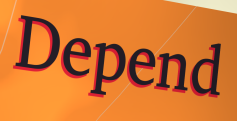
Depend